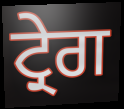
ਟ੍ਰੇਗ